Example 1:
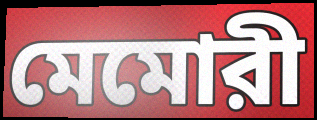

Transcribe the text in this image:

মেমোরী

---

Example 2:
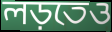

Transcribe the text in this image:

লড়তেও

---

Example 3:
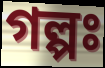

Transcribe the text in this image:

গল্পঃ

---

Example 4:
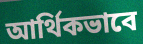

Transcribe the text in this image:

আর্থিকভাবে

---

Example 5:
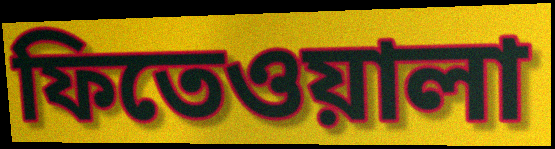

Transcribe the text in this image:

ফিতেওয়ালা